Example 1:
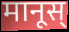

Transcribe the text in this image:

मानूस्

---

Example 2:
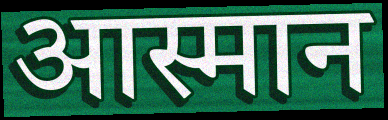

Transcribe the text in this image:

आस्मान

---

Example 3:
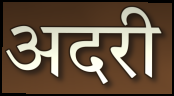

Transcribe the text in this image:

अदरी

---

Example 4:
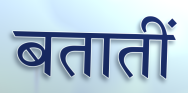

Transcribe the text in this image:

बतातीं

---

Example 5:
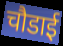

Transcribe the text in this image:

चौडाई